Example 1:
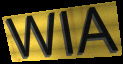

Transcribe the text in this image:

WIA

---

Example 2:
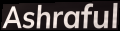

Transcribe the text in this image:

Ashraful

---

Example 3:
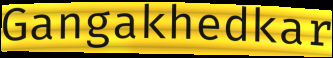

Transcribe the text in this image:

Gangakhedkar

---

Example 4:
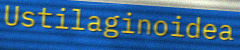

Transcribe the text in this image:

Ustilaginoidea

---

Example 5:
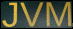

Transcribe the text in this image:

JVM